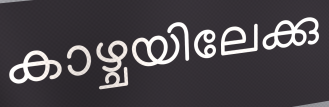
കാഴ്ചയിലേക്കു